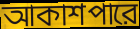
আকাশপারে